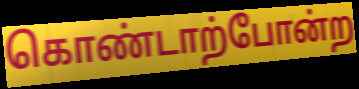
கொண்டாற்போன்ற